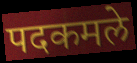
पदकमले